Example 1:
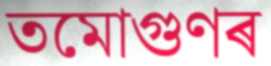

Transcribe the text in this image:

তমোগুণৰ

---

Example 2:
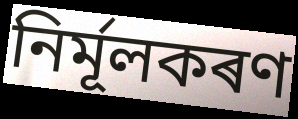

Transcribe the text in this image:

নিৰ্মূলকৰণ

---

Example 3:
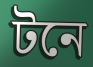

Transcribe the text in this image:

টনে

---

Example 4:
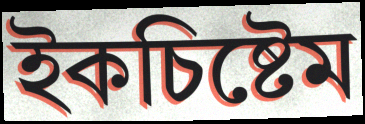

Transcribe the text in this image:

ইকচিষ্টেম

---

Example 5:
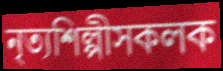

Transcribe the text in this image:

নৃত্যশিল্পীসকলক